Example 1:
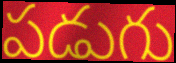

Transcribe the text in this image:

పడుగు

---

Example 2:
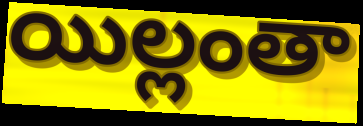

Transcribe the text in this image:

యిల్లంతా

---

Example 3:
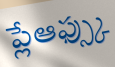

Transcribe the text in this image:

ప్లేఆఫ్స్కు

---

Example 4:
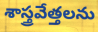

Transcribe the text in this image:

శాస్త్రవేత్తలను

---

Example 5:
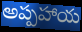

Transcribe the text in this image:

అప్పహాయ